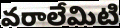
వరాలేమిటి